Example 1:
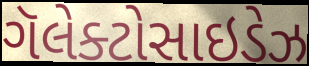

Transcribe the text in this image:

ગૅલેક્ટોસાઇડેઝ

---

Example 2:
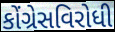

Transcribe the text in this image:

કોંગ્રેસવિરોધી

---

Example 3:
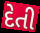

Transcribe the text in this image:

દેતી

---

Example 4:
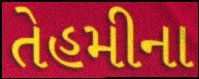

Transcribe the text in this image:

તેહમીના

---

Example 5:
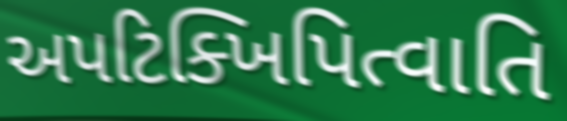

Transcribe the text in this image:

અપટિક્ખિપિત્વાતિ